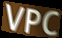
VPC